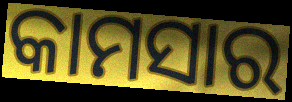
କାମସାର